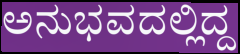
ಅನುಭವದಲ್ಲಿದ್ದ